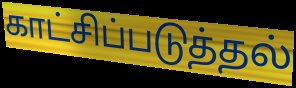
காட்சிப்படுத்தல்